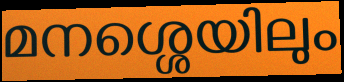
മനശ്ശെയിലും